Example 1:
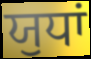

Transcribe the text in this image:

ਯੁਧਾਂ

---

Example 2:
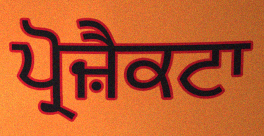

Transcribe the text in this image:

ਪ੍ਰੋਜ਼ੈਕਟਾ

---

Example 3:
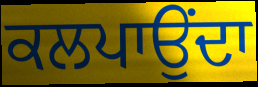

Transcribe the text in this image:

ਕਲਪਾਉਂਦਾ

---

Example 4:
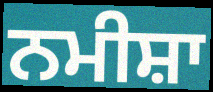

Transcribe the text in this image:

ਨਮੀਸ਼ਾ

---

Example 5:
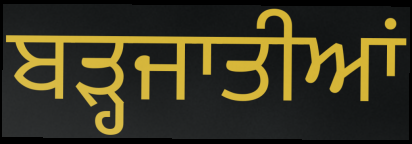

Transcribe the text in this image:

ਬੜ੍ਹਜਾਤੀਆਂ